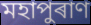
মহাপুৰাণ